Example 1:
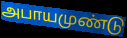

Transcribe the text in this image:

அபாயமுண்டு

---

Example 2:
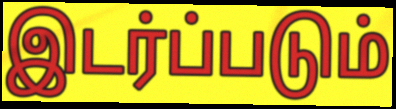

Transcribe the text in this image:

இடர்ப்படும்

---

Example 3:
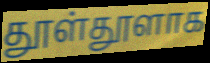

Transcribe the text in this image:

தூள்தூளாக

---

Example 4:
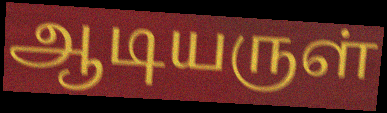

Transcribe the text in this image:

ஆடியருள்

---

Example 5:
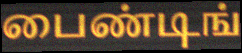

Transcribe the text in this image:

பைண்டிங்